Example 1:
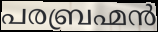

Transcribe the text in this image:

പരബ്രഹ്മൻ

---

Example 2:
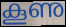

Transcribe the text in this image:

കൂണു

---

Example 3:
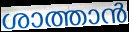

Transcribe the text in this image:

ശാത്താൻ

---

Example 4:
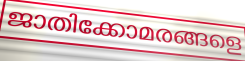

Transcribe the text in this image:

ജാതിക്കോമരങ്ങളെ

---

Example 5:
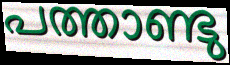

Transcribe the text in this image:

പത്താണ്ടു